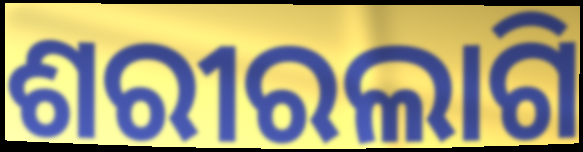
ଶରୀରଲାଗି